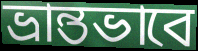
ভ্রান্তভাবে